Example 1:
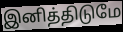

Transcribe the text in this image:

இனித்திடுமே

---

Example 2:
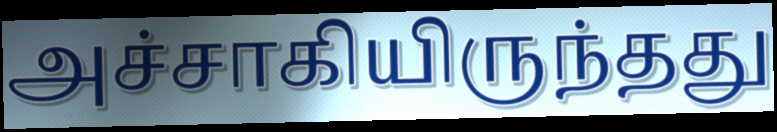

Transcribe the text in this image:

அச்சாகியிருந்தது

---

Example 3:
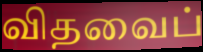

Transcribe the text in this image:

விதவைப்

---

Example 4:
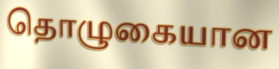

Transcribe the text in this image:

தொழுகையான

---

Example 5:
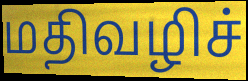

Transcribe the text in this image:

மதிவழிச்